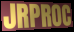
JRPROC